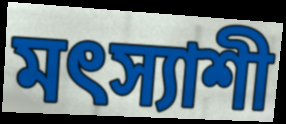
মৎস্যাশী